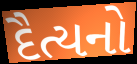
દૈત્યનો